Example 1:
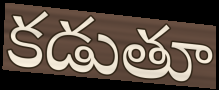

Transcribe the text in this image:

కడుతూ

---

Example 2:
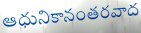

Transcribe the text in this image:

ఆధునికానంతరవాద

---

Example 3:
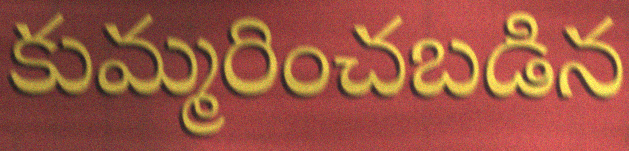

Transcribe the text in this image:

కుమ్మరించబడిన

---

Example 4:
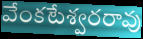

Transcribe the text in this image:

వేంకటేశ్వరరావు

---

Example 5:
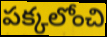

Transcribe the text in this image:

పక్కలోంచి